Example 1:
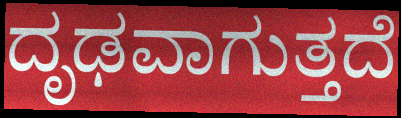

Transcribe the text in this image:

ದೃಢವಾಗುತ್ತದೆ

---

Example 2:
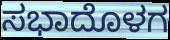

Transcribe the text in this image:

ಸಭಾದೊಳಗ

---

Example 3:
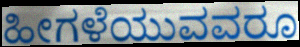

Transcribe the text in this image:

ಹೀಗಳೆಯುವವರೂ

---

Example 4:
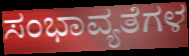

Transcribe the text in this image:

ಸಂಭಾವ್ಯತೆಗಳ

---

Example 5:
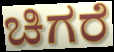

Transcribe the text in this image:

ಚಿಗರೆ